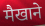
मैखाने